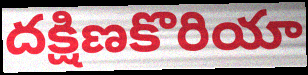
దక్షిణకొరియా